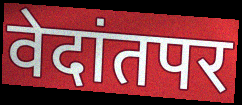
वेदांतपर